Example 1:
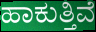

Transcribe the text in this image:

ಹಾಕುತ್ತಿವೆ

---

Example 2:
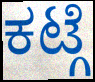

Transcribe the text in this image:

ಕಟ್ಗೆ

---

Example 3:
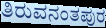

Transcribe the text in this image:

ತಿರುವನಂತಪುರ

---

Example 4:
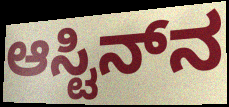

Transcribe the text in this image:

ಆಸ್ಟಿನ್‌ನ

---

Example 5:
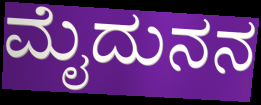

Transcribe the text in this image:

ಮೈದುನನ